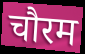
चौरम